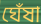
ঘেঁষা